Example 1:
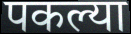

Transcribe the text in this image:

पकल्या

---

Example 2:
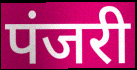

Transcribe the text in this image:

पंजरी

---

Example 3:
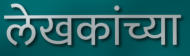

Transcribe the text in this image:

लेखकांच्या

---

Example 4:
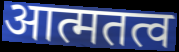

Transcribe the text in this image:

आत्मतत्व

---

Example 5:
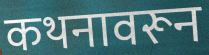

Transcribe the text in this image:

कथनावरून